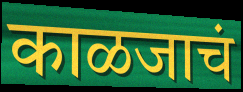
काळजाचं